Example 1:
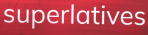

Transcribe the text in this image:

superlatives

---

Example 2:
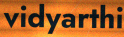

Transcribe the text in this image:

vidyarthi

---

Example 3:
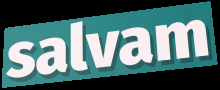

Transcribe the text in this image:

salvam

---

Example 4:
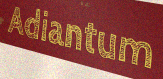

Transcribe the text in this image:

Adiantum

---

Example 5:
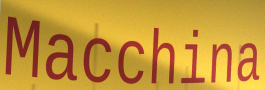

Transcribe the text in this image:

Macchina